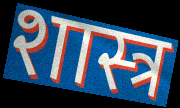
शास्‍त्र